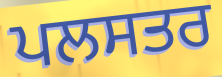
ਪਲਸਤਰ